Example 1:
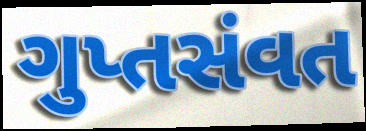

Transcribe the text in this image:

ગુપ્તસંવત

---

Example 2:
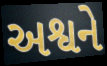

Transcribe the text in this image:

અશ્વને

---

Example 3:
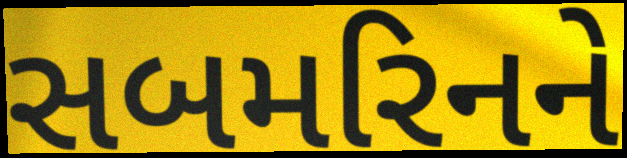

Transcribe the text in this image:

સબમરિનને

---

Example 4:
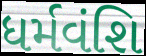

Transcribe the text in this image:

ધર્મવંશિ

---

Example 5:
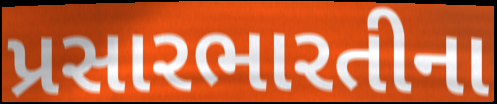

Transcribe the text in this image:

પ્રસારભારતીના